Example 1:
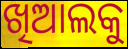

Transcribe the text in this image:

ଖିଆଲକୁ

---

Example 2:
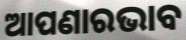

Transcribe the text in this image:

ଆପଣାରଭାବ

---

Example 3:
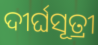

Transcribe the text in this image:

ଦୀର୍ଘସୂତ୍ରୀ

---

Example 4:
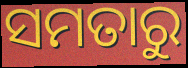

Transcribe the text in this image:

ସମତାରୁ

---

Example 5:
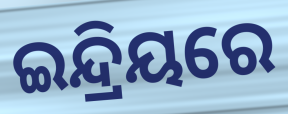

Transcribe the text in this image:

ଇନ୍ଦ୍ରିୟରେ